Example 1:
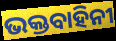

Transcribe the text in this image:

ଭକ୍ତବାହିନୀ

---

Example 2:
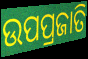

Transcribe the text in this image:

ଉପପ୍ରଜାତି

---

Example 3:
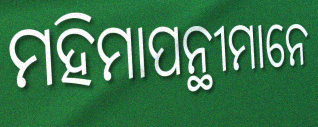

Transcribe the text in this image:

ମହିମାପନ୍ଥୀମାନେ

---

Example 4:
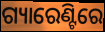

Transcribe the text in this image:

ଗ୍ୟାରେଣ୍ଟିରେ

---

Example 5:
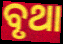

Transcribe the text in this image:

ବୃଥା